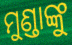
ମୁଣ୍ଡାଙ୍କୁ